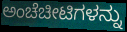
ಅಂಚೆಚೀಟಿಗಳನ್ನು